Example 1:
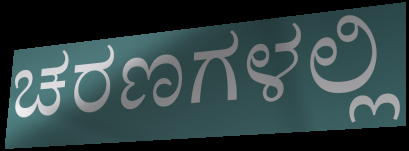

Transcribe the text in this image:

ಚರಣಗಳಲ್ಲಿ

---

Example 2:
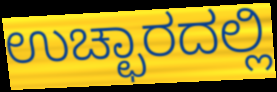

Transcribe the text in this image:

ಉಚ್ಛಾರದಲ್ಲಿ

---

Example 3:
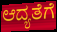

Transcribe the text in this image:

ಆದ್ಯತೆಗೆ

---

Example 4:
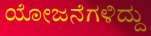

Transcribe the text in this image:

ಯೋಜನೆಗಳಿದ್ದು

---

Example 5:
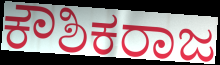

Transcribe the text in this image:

ಕೌಶಿಕರಾಜ